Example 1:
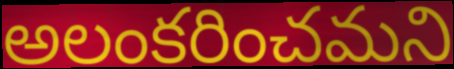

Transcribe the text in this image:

అలంకరించమని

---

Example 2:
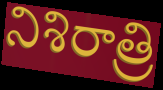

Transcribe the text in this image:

నిశిరాత్రి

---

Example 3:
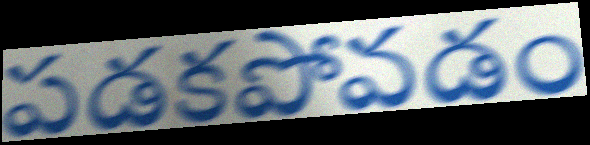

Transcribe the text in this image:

పడకపోవడం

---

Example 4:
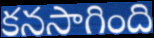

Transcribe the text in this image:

కనసాగింది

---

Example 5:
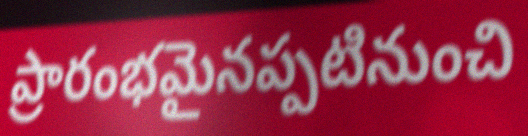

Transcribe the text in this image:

ప్రారంభమైనప్పటినుంచి